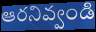
ఆరనివ్వండి